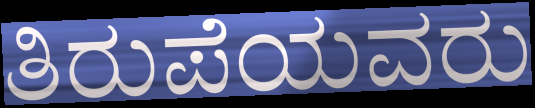
ತಿರುಪೆಯವರು